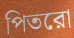
পিতরো